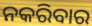
ନକରିବାର